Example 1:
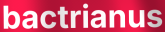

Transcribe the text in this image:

bactrianus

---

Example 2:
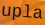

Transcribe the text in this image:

upla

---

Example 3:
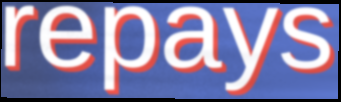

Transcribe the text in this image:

repays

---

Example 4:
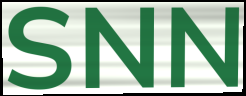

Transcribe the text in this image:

SNN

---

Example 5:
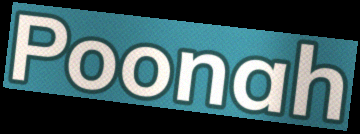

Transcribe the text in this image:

Poonah